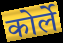
कोर्ले